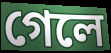
গেলে